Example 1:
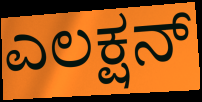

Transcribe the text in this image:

ಎಲಕ್ಷನ್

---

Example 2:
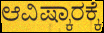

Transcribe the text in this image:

ಆವಿಷ್ಕಾರಕ್ಕೆ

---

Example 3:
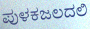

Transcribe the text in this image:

ಪುಳಕಜಲದಲಿ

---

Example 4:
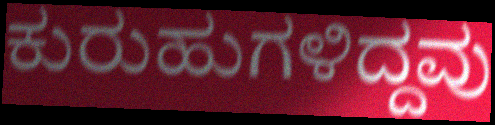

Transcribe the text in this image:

ಕುರುಹುಗಳಿದ್ದವು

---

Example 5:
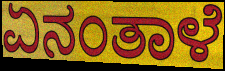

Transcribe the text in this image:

ಏನಂತಾಳೆ